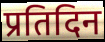
प्रतिदिन